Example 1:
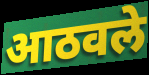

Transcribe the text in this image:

आठवले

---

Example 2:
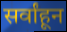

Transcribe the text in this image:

सर्वांहून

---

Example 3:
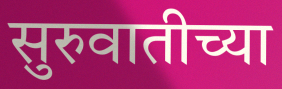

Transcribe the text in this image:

सुरुवातीच्या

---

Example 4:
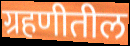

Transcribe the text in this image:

ग्रहणीतील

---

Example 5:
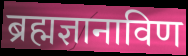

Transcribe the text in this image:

ब्रह्मज्ञानाविण